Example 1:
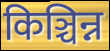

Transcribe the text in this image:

किञ्चिन्न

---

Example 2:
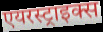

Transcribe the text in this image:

एयरस्ट्राइक्स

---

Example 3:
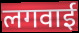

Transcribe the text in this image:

लगवाई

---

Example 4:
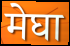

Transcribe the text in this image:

मेघा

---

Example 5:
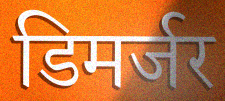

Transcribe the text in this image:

डिमर्जर